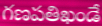
గణపతిఖండే